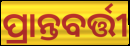
ପ୍ରାନ୍ତବର୍ତ୍ତୀ